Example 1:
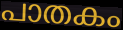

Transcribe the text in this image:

പാതകം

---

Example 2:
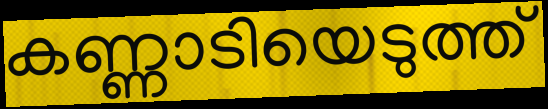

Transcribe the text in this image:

കണ്ണാടിയെടുത്ത്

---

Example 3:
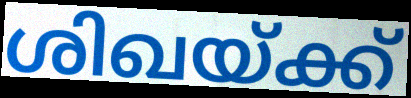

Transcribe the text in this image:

ശിഖയ്ക്ക്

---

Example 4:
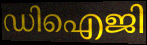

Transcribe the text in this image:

ഡിഐജി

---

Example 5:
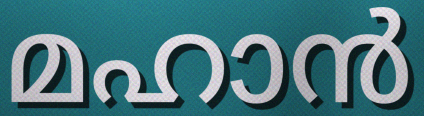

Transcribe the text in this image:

മഹാൻ